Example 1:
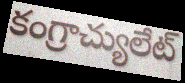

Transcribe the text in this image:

కంగ్రాచ్యులేట్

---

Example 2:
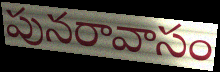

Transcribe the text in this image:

పునరావాసం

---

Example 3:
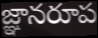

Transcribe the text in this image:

జ్ఞానరూప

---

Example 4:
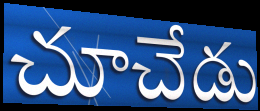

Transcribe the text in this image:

చూచేడు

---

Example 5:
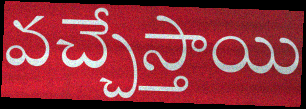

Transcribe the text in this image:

వచ్చేస్తాయి